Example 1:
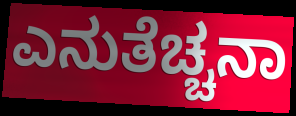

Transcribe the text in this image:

ಎನುತೆಚ್ಚನಾ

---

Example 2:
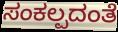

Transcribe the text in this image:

ಸಂಕಲ್ಪದಂತೆ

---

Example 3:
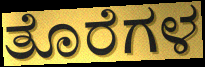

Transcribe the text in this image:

ತೊರೆಗಳ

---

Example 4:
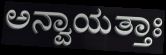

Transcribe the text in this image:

ಅನ್ವಾಯತ್ತಾಃ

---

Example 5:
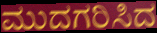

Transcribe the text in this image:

ಮುದಗರಿಸಿದ